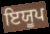
ਇਯੂਪ